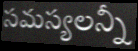
సమస్యలన్నీ